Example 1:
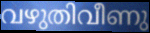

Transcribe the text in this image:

വഴുതിവീണു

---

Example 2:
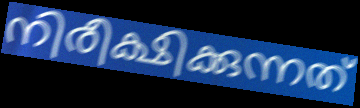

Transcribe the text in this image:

നിരീക്ഷിക്കുന്നത്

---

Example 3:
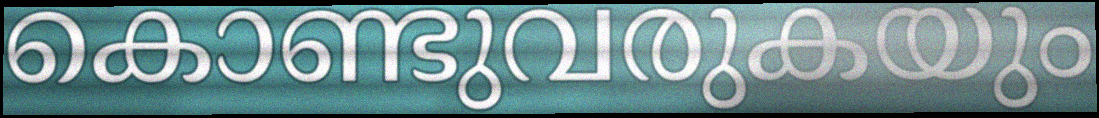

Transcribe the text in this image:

കൊണ്ടുവരുകയും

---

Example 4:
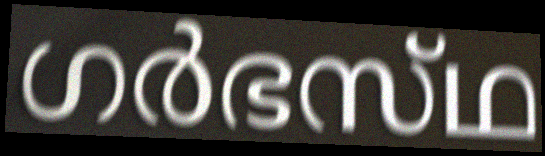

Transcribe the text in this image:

ഗർഭസ്‌ഥ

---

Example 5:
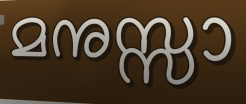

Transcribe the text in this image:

മനുസ്സാ